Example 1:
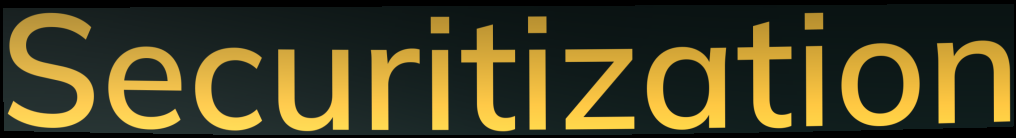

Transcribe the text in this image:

Securitization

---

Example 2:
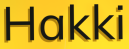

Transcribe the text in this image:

Hakki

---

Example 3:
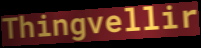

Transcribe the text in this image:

Thingvellir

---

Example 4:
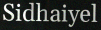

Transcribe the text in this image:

Sidhaiyel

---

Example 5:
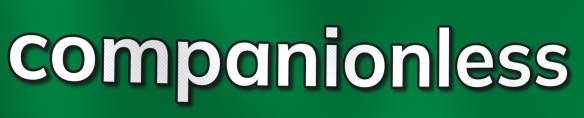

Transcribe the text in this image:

companionless